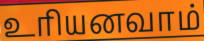
உரியனவாம்